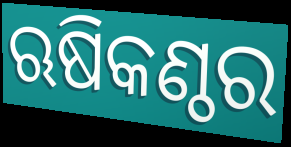
ଋଷିକଣ୍ଠର